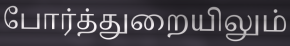
போர்த்துறையிலும்